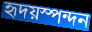
হৃদয়স্পন্দন